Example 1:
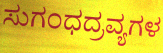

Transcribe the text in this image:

ಸುಗಂಧದ್ರವ್ಯಗಳ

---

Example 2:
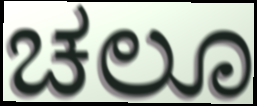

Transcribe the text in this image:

ಚಲೂ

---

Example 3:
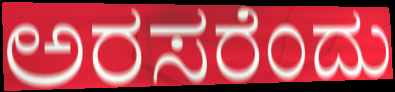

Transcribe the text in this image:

ಅರಸರೆಂದು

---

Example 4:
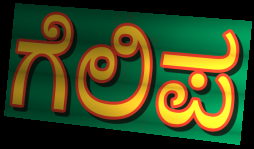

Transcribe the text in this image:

ಗೆಲಿಪ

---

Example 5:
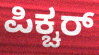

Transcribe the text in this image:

ಪಿಕ್ಚರ್